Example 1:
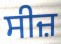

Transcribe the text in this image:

ਸੀਜ਼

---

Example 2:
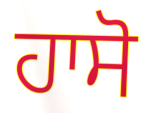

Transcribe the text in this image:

ਹਾਸੋ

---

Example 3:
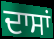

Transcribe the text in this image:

ਦਾਸਾਂ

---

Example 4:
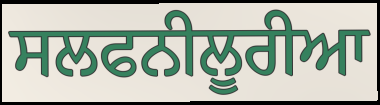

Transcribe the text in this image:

ਸਲਫਨੀਲੂਰੀਆ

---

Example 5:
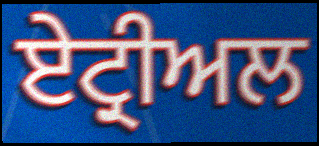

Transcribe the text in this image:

ਏਟ੍ਰੀਅਲ